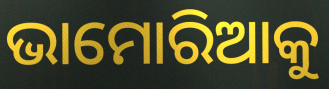
ଭାମୋରିଆକୁ